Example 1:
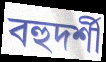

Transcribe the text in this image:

বহুদর্শী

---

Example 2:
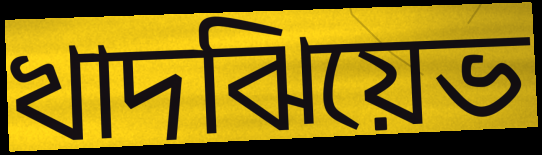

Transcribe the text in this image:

খাদঝিয়েভ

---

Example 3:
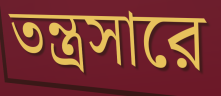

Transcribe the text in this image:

তন্ত্রসারে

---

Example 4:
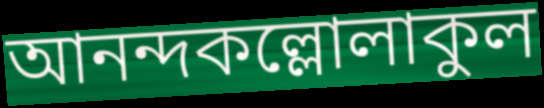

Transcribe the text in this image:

আনন্দকল্লোলাকুল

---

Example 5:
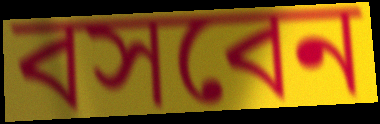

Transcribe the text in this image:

বসবেন